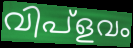
വിപ്ളവം